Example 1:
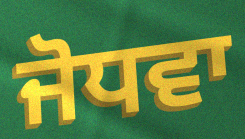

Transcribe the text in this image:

ਜੋਧਵਾ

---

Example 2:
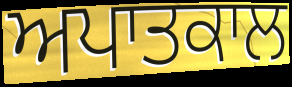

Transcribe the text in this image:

ਅਪਾਤਕਾਲ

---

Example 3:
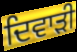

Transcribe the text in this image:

ਦਿਵਾੜੀ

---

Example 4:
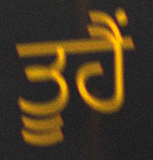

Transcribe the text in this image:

ਤੂਹੈਂ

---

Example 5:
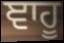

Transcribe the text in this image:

ਞਾਹੂ